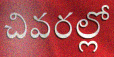
చివరల్లో